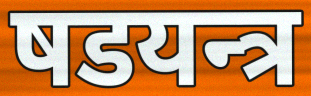
षडयन्त्र